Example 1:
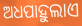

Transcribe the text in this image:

ଅଧପାହୁଲାଏ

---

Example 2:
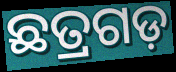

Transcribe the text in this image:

ଛତ୍ରଗଡ଼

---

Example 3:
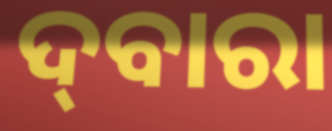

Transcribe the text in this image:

ଦ୍‌ବାରା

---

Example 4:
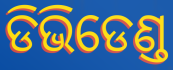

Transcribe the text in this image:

ଡିଭିଡେଣ୍ଡ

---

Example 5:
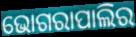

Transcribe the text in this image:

ଭୋଗରାପାଲିର